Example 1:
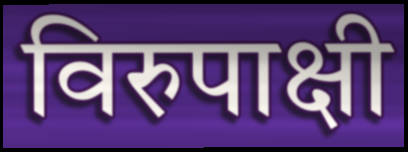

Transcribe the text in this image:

विरुपाक्षी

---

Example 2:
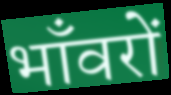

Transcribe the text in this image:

भाँवरों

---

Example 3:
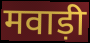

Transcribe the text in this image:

मवाड़ी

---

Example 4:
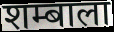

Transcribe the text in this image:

शम्बाला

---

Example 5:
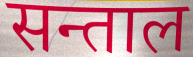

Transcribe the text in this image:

सन्ताल